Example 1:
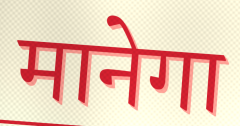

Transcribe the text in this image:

मानेगा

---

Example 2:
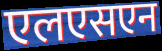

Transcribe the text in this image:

एलएसएन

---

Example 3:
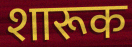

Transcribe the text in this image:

शारूक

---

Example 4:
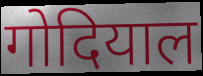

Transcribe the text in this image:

गोदियाल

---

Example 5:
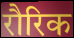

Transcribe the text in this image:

रौरिक